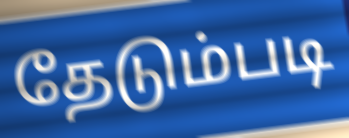
தேடும்படி